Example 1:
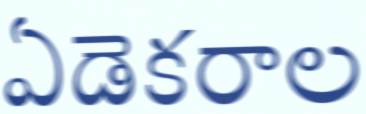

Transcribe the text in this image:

ఏడెకరాల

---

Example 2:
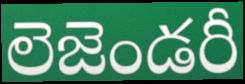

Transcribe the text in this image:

లెజెండరీ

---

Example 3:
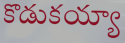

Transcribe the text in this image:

కొడుకయ్యా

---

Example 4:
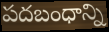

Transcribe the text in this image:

పదబంధాన్ని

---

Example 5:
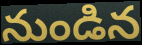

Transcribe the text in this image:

నుండిన